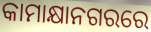
କାମାକ୍ଷାନଗରରେ